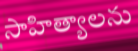
సాహిత్యాలను